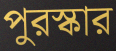
পুরস্কার